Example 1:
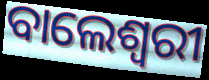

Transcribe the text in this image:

ବାଲେଶ୍ଵରୀ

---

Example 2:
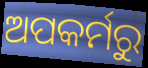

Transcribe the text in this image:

ଅପକର୍ମରୁ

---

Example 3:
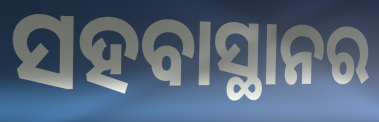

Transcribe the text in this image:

ସହବାସ୍ଥାନର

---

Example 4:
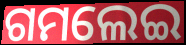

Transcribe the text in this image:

ଗମଲେଇ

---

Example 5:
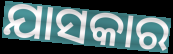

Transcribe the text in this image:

ଯାସକାର